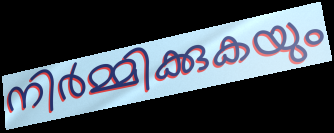
നിർമ്മിക്കുകയും